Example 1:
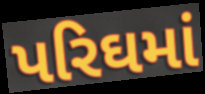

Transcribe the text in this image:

પરિઘમાં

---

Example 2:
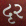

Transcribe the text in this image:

દૃર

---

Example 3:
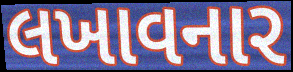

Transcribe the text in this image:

લખાવનાર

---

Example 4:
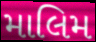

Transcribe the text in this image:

માલિમ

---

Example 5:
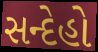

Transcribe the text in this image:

સન્દેહો